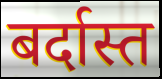
बर्दास्त